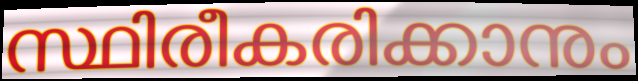
സ്ഥിരീകരിക്കാനും